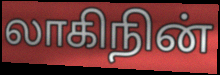
லாகிநின்